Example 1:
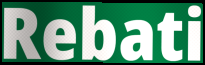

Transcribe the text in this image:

Rebati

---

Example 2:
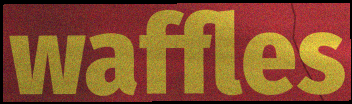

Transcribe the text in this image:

waffles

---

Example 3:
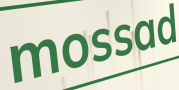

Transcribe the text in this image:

mossad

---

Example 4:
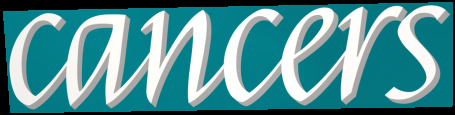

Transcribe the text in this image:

cancers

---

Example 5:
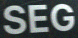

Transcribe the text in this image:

SEG